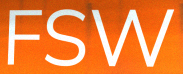
FSW